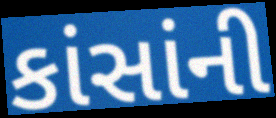
કાંસાંની